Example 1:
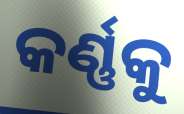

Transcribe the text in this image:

କର୍ଣ୍ଣକୁ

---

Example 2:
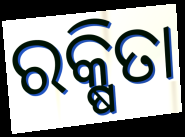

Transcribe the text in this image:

ରକ୍ଷିତା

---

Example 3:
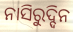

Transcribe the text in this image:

ନାସିରୁଦ୍ଦିନ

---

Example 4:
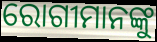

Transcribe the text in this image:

ରୋଗୀମାନଙ୍କୁ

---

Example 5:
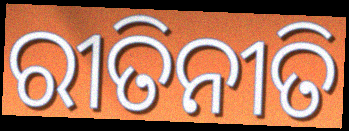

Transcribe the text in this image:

ରୀତିନୀତି